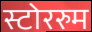
स्टोररुम